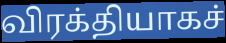
விரக்தியாகச்